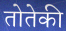
तोतेकी